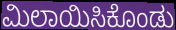
ಮಿಲಾಯಿಸಿಕೊಂಡು